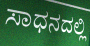
ಸಾಧನದಲ್ಲಿ